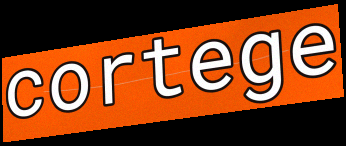
cortege